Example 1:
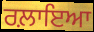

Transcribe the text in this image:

ਰਲ਼ਾਇਆ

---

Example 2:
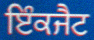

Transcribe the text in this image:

ਇੰਕਜੈਟ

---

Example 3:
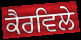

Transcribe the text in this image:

ਕੈਰਵਿਲੇ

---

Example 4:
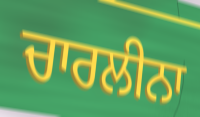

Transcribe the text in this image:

ਚਾਰਲੀਨਾ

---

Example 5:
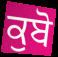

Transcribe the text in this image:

ਕੁਬੋ